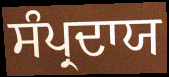
ਸੰਪ੍ਰਦਾਯ